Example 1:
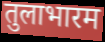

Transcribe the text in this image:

तुलाभारम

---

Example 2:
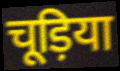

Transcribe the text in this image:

चूड़िया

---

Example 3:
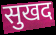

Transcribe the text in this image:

सुखद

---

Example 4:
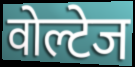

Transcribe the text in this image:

वोल्टेज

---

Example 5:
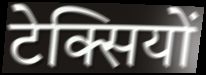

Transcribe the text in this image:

टेक्सियों